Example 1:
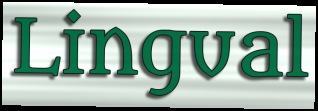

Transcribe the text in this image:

Lingual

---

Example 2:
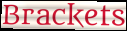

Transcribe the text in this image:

Brackets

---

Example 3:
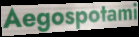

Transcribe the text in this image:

Aegospotami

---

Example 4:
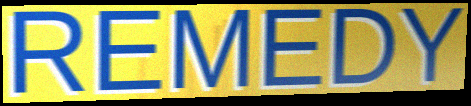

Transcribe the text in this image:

REMEDY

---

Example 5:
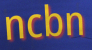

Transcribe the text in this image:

ncbn